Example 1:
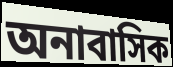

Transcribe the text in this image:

অনাবাসিক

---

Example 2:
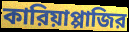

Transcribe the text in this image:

কারিয়াপ্পাজির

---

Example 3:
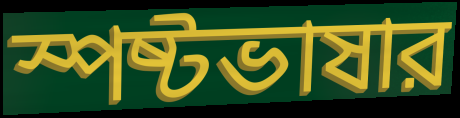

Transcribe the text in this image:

স্পষ্টভাষার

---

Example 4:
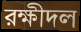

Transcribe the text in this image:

রক্ষীদল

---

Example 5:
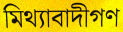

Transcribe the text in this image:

মিথ্যাবাদীগণ